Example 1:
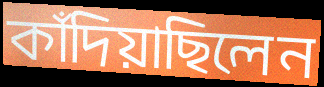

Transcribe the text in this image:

কাঁদিয়াছিলেন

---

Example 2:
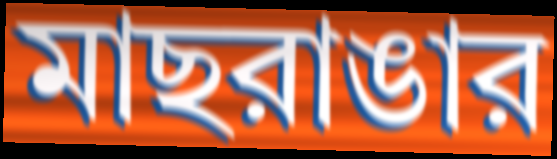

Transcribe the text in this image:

মাছরাঙার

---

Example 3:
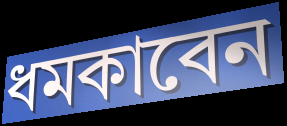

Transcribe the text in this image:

ধমকাবেন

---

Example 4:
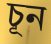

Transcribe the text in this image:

চূন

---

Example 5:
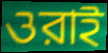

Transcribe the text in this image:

ওরাই